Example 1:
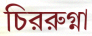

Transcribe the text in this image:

চিররুগ্না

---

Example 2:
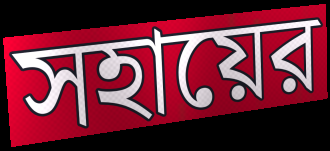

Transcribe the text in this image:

সহায়ের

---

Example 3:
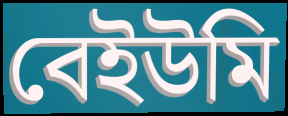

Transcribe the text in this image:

বেইউমি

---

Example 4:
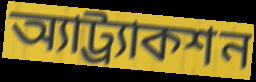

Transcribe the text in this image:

অ্যাট্র্যাকশন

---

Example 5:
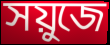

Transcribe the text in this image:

সয়ুজে